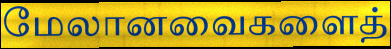
மேலானவைகளைத்